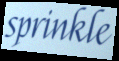
sprinkle